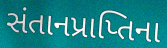
સંતાનપ્રાપ્તિના